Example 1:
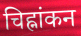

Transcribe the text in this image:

चिह्नांकन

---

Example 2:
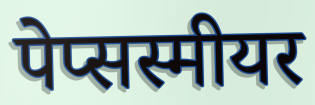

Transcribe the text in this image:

पेप्सस्मीयर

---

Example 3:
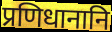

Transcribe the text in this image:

प्रणिधानानि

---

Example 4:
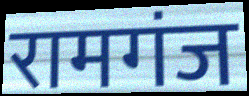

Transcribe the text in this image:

रामगंज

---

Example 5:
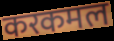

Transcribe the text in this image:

करकमल